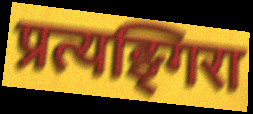
प्रत्यङ्गिरा